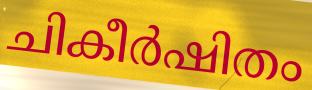
ചികീർഷിതം